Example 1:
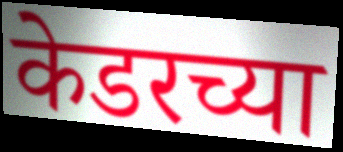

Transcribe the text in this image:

केडरच्या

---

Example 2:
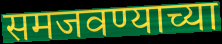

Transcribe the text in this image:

समजवण्याच्या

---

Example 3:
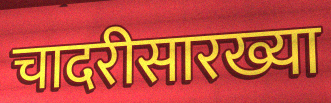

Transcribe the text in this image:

चादरीसारख्या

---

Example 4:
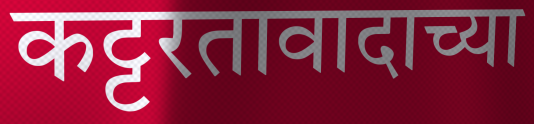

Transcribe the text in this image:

कट्टरतावादाच्या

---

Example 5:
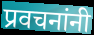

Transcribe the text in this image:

प्रवचनांनी